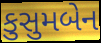
કુસુમબેન